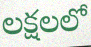
లక్షలలో